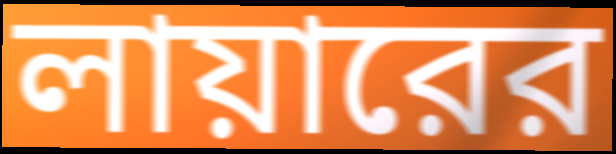
লায়ারের